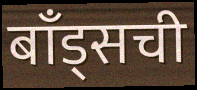
बॉंड्सची